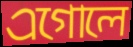
এগোলে